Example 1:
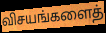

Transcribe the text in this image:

விசயங்களைத்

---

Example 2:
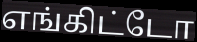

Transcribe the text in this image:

எங்கிட்டோ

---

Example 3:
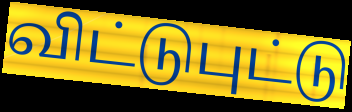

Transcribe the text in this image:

விட்டுபுட்டு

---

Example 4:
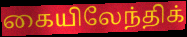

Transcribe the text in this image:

கையிலேந்திக்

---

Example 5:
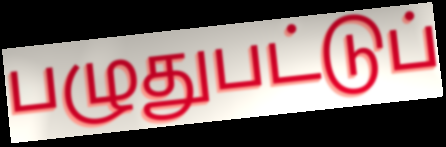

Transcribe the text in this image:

பழுதுபட்டுப்